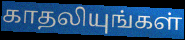
காதலியுங்கள்